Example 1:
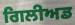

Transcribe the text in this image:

ਗਿਲੀਅਡ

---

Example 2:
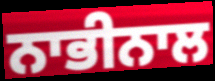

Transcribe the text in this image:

ਨਾਭੀਨਾਲ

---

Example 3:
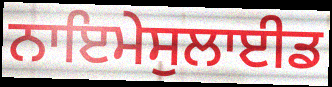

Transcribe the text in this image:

ਨਾਇਮੇਸੁਲਾਈਡ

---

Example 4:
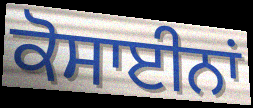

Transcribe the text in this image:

ਕੋਸਾਈਨਾਂ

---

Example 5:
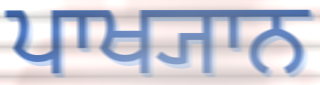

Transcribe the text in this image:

ਪਾਖ੍ਯਾਨ